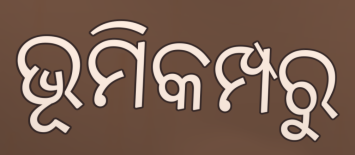
ଭୂମିକମ୍ପରୁ